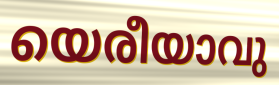
യെരീയാവു